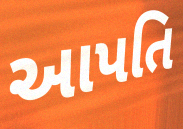
આપતિ